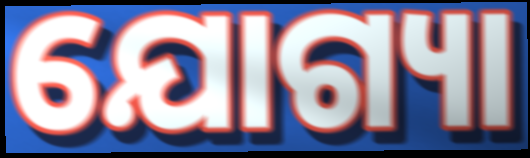
ଯୋଗ୍ୟା